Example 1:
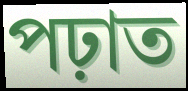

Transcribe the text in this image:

পঢ়াত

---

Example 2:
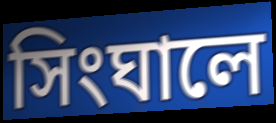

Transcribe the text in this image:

সিংঘালে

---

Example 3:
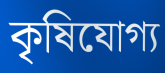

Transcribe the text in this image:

কৃষিযোগ্য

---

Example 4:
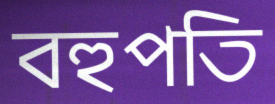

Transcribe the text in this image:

বহুপতি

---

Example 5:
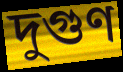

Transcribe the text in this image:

দুগুণ